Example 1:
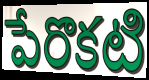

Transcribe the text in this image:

పేరొకటి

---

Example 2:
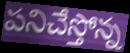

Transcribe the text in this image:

పనిచేస్తోన్న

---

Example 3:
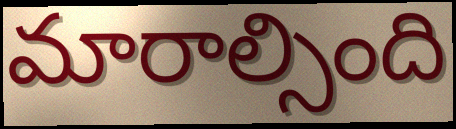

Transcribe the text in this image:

మారాల్సింది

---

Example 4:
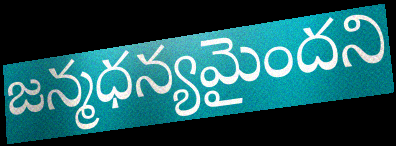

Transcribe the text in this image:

జన్మధన్యమైందని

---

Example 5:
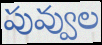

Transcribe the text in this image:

పువ్వుల